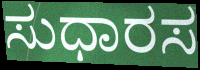
ಸುಧಾರಸ